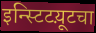
इन्स्टिटय़ूटचा